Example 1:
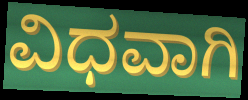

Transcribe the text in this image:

ವಿಧವಾಗಿ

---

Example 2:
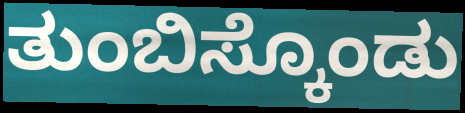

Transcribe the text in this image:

ತುಂಬಿಸ್ಕೊಂಡು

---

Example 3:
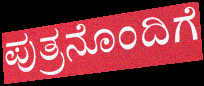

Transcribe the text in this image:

ಪುತ್ರನೊಂದಿಗೆ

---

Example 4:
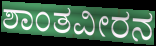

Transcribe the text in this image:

ಶಾಂತವೀರನ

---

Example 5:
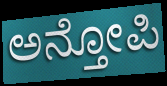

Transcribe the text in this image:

ಅನ್ತೋಪಿ